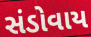
સંડોવાય